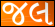
જલ